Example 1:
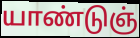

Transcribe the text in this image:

யாண்டுஞ்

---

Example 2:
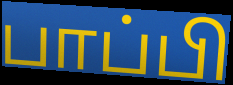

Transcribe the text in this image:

பாப்பி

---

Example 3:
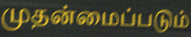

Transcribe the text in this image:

முதன்மைப்படும்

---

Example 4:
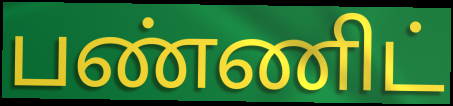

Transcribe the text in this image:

பண்ணிட்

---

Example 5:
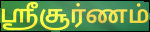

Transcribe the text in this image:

ஸ்ரீசூர்ணம்